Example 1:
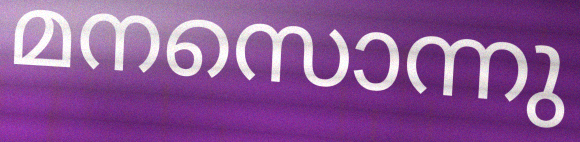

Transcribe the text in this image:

മനസൊന്നു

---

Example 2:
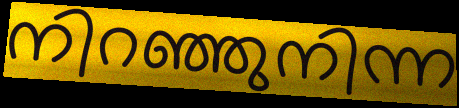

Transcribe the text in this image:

നിറഞ്ഞുനിന്ന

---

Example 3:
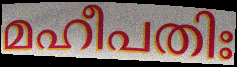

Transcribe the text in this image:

മഹീപതിഃ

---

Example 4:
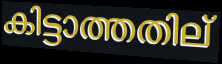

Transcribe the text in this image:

കിട്ടാത്തതില്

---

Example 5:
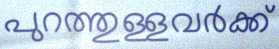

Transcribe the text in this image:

പുറത്തുള്ളവർക്ക്